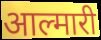
आल्मारी